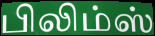
பிலிம்ஸ்